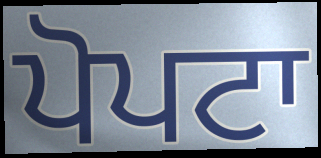
ਪੋਪਟਾ